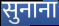
सुनाना